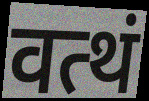
वत्थं